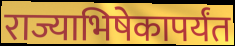
राज्याभिषेकापर्यंत